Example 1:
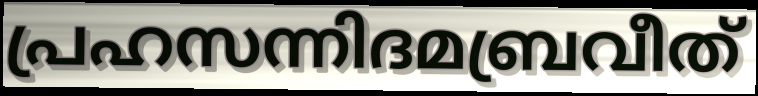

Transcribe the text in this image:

പ്രഹസന്നിദമബ്രവീത്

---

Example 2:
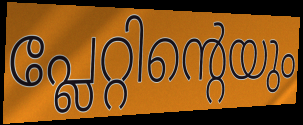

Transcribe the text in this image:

പ്ലേറ്റിന്റെയും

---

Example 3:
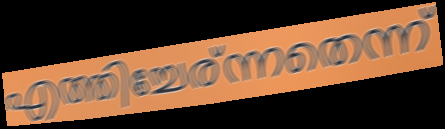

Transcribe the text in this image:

എത്തിച്ചേര്ന്നതെന്ന്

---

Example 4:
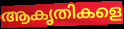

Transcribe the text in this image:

ആകൃതികളെ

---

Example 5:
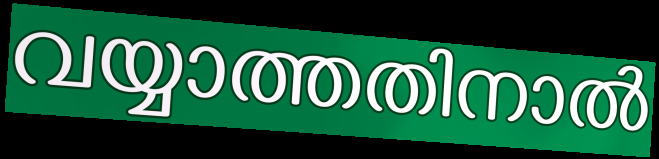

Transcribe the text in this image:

വയ്യാത്തതിനാൽ